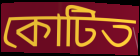
কোটিত